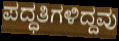
ಪದ್ಧತಿಗಳಿದ್ದವು